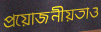
প্রয়োজনীয়তাও